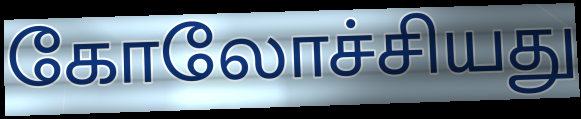
கோலோச்சியது